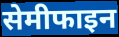
सेमीफाइन